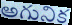
అగునిక